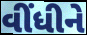
વીંધીને